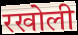
रखोली